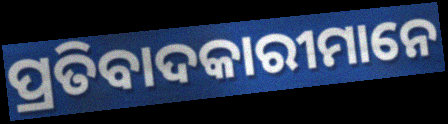
ପ୍ରତିବାଦକାରୀମାନେ